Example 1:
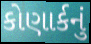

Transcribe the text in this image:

કોણાર્કનું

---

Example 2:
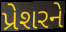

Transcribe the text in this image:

પ્રેશરને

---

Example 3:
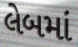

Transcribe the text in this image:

લેબમાં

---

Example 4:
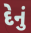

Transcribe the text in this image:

દેનું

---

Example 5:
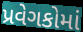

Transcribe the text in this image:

પ્રવેગકોમાં